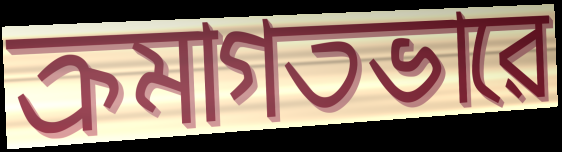
ক্ৰমাগতভাৱে